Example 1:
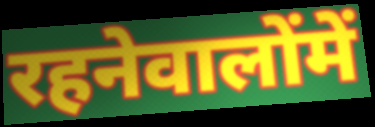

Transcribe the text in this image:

रहनेवालोंमें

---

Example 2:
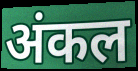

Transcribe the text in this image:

अंकल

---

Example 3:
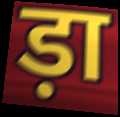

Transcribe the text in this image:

ड़ा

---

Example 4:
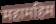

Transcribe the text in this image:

महामहिम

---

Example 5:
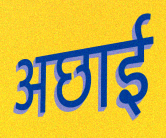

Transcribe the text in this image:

अछाई